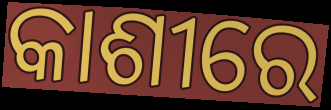
କାଶୀରେ